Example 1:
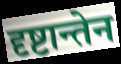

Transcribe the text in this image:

दृष्टान्तेन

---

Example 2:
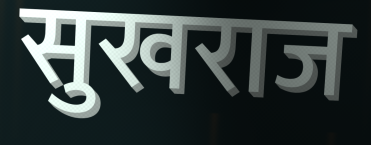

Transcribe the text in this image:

सुखराज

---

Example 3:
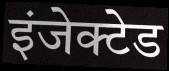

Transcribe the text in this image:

इंजेक्टेड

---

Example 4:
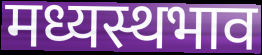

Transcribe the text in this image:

मध्यस्थभाव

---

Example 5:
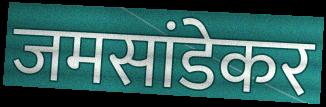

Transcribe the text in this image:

जमसांडेकर